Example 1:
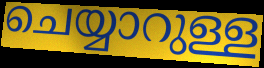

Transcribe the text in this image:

ചെയ്യാറുള്ള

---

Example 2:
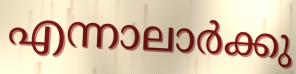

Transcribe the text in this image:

എന്നാലാർക്കു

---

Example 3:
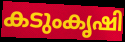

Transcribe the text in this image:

കടുംകൃഷി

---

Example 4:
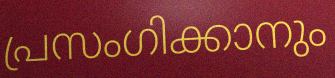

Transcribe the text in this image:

പ്രസംഗിക്കാനും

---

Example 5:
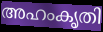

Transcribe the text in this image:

അഹംകൃതി